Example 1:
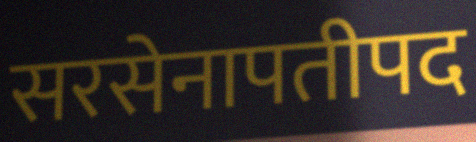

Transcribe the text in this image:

सरसेनापतीपद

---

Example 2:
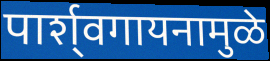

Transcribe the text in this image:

पार्श्वगायनामुळे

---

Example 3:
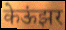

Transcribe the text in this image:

केऊंझर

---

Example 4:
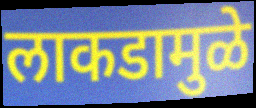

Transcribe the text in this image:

लाकडामुळे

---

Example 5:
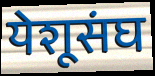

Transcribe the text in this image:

येशूसंघ